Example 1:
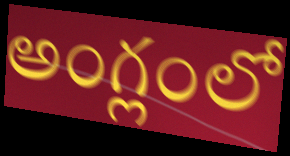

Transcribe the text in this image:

అంగ్లంలో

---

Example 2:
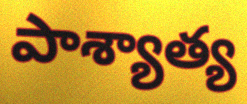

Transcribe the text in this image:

పాశ్యాత్య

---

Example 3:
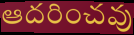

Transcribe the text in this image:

ఆదరించవు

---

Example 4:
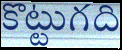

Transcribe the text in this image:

కొట్టుగది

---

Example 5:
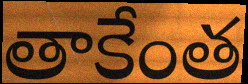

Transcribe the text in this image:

తాకేంత